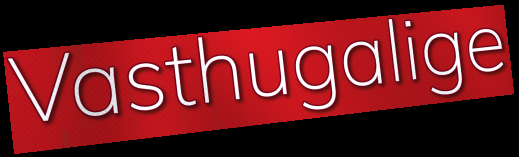
Vasthugalige